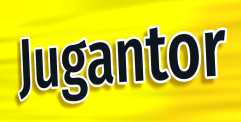
Jugantor